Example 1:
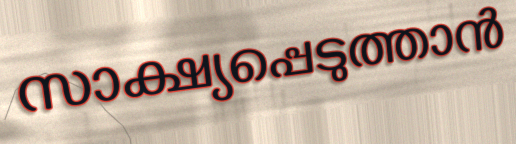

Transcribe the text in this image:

സാക്ഷ്യപ്പെടുത്താൻ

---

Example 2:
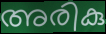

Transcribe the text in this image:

അരികു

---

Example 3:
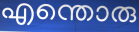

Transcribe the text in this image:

എന്തൊരു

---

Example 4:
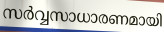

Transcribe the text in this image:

സർവ്വസാധാരണമായി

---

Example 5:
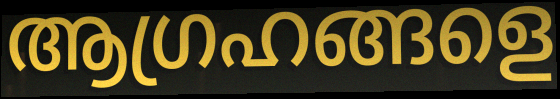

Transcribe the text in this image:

ആഗ്രഹങ്ങളെ